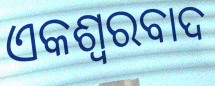
ଏକଶ୍ୱରବାଦ